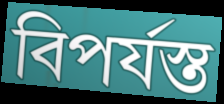
বিপৰ্যস্ত